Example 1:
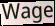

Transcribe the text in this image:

Wage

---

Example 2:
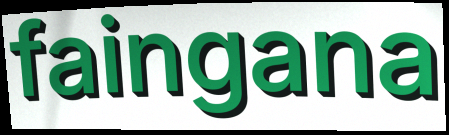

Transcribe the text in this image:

faingana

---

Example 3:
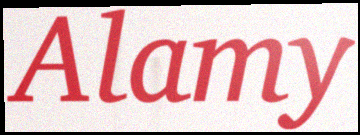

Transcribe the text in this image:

Alamy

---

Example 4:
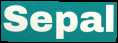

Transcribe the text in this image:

Sepal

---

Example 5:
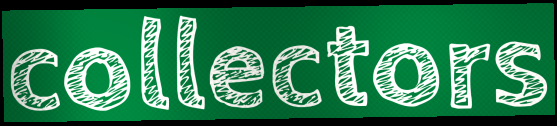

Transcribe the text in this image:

collectors